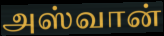
அஸ்வான்